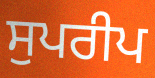
ਸੁਪਰੀਪ